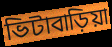
ভিটাবাড়িয়া